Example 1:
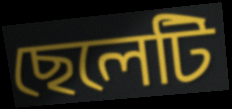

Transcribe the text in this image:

ছেলেটি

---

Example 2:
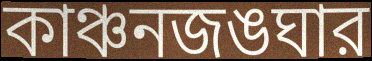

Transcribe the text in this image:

কাঞ্চনজঙঘার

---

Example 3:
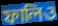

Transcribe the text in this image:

ফালিও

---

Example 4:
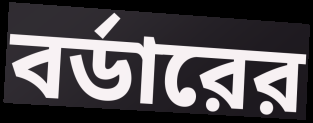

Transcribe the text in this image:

বর্ডারের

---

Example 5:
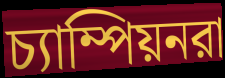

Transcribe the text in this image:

চ্যাম্পিয়নরা